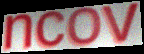
ncov